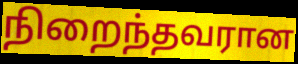
நிறைந்தவரான